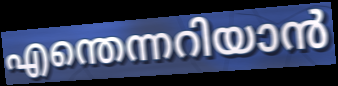
എന്തെന്നറിയാൻ